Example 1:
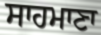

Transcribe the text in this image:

ਸਾਹਮਾਣਾ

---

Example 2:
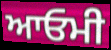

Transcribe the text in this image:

ਆਓਮੀ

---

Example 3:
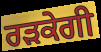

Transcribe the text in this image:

ਰੜਕੇਗੀ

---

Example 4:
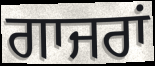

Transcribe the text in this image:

ਗਾਜਰਾਂ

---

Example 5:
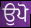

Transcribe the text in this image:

ਉਪੋ